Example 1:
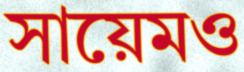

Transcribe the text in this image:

সায়েমও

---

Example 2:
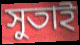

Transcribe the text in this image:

সুতাই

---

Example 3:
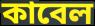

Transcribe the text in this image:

কাবেল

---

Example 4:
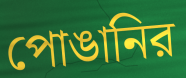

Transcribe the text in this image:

পোঙানির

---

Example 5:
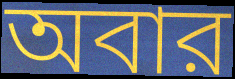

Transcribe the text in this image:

অবার